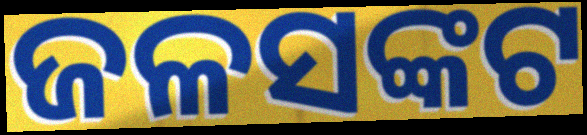
ଜଳସଙ୍କଟ